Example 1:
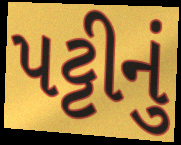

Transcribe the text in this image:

પટ્ટીનું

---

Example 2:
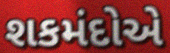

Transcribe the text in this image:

શકમંદોએ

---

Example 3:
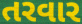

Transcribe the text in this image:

તરવાર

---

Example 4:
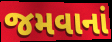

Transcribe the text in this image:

જમવાનાં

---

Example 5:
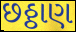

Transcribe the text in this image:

છઠ્ઠાણ